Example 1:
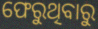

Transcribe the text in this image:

ଫେରୁଥିବାରୁ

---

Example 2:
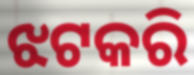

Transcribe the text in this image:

ଝଟକରି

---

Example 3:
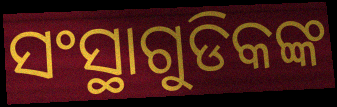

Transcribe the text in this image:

ସଂସ୍ଥାଗୁଡିକଙ୍କ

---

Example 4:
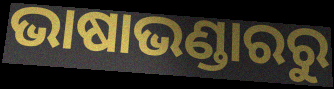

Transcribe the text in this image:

ଭାଷାଭଣ୍ଡାରରୁ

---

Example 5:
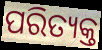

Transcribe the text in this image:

ପରିତ୍ଯକ୍ତ